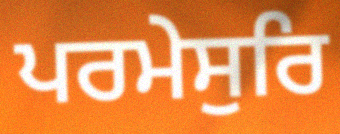
ਪਰਮੇਸੁਰਿ